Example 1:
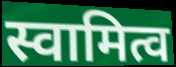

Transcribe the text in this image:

स्वामित्व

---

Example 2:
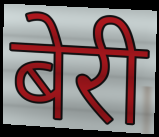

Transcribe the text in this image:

बेरी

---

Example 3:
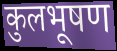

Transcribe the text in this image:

कुलभूषण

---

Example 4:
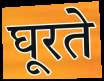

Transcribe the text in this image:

घूरते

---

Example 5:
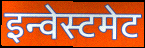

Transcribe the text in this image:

इन्वेस्टमेट